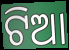
ଟିଆ